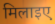
मिलाइए